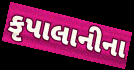
કૃપાલાનીના